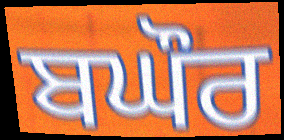
ਬਘੌਰ